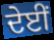
ਦੇਈਂ